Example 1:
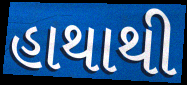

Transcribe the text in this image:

હાથાથી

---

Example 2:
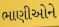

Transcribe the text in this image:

ભાણીઓને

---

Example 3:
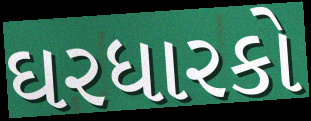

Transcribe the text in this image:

ઘરધારકો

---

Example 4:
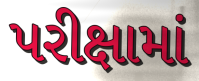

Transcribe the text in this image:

પરીક્ષામાં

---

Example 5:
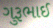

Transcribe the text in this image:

ગુરૂભાઈ